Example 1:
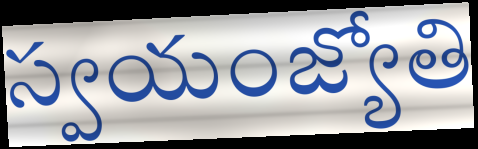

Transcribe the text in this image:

స్వయంజ్యోతి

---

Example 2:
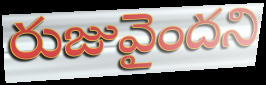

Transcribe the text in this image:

రుజువైందని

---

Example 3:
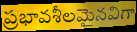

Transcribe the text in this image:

ప్రభావశీలమైనవిగా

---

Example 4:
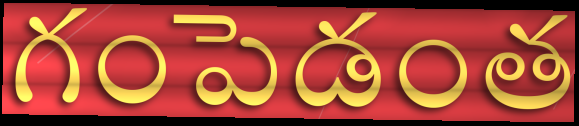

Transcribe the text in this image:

గంపెడంత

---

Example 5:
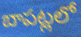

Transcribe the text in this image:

బాపట్లలో